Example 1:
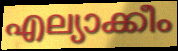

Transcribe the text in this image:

എല്യാക്കീം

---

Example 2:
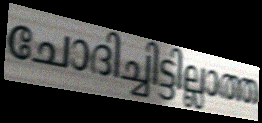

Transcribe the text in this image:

ചോദിച്ചിട്ടില്ലാത്ത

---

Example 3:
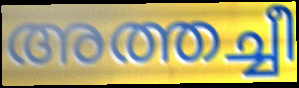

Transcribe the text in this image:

അത്തച്ചീ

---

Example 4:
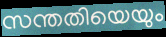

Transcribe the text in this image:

സന്തതിയെയും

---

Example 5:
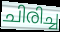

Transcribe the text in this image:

ചിരിച്ച